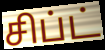
சிப்ட்